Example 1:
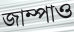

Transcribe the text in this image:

জাম্পাও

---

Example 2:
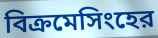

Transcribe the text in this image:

বিক্রমেসিংহের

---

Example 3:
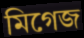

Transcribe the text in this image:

মিগেজ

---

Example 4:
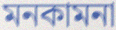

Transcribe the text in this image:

মনকামনা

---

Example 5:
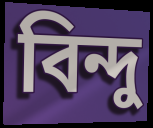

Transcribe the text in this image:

বিন্দু